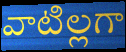
వాటిల్లగా